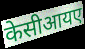
केसीआयए